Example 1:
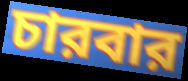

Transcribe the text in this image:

চারবার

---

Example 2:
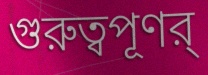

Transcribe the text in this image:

গুরুত্বপূণর্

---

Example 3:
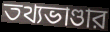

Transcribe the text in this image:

তথ্যভাণ্ডার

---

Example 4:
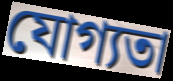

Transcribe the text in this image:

যোগ্যতা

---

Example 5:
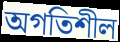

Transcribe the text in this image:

অগতিশীল